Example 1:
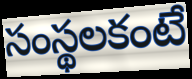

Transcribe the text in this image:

సంస్థలకంటే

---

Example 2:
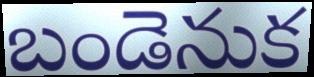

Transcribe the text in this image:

బండెనుక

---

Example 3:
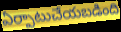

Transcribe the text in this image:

ఏర్పాటుచేయబడింది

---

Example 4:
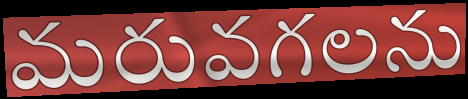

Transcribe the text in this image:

మరువగలను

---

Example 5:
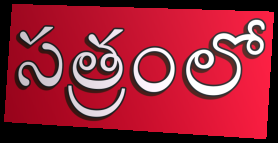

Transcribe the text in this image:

సత్రంలో